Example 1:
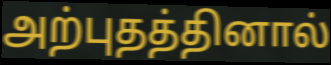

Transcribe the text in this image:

அற்புதத்தினால்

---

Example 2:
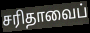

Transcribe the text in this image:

சரிதாவைப்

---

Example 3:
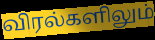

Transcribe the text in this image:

விரல்களிலும்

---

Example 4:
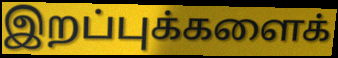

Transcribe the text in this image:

இறப்புக்களைக்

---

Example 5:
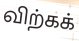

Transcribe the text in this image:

விற்கக்